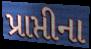
પ્રાપ્તીના